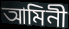
আমিনী